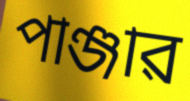
পাঞ্জাৱ